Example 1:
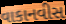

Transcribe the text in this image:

વાકાનવીસ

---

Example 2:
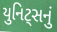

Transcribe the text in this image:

યુનિટ્સનું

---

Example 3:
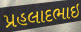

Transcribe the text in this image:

પ્રહલાદભાઇ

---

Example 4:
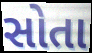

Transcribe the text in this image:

સોતા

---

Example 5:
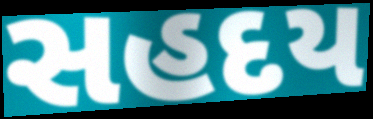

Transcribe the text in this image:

સહદય